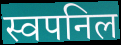
स्वपनिल